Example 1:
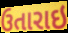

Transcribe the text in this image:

ઉતારાઇ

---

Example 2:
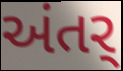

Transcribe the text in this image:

અંતર્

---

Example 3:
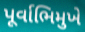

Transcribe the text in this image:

પૂર્વાભિમુખે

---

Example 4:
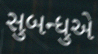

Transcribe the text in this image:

સુબન્ધુએ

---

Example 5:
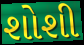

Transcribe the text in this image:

શોશી